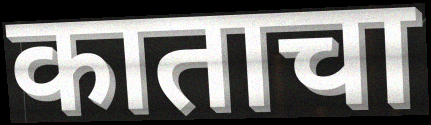
काताचा